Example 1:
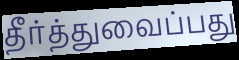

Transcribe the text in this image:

தீர்த்துவைப்பது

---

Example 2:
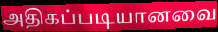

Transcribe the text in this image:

அதிகப்படியானவை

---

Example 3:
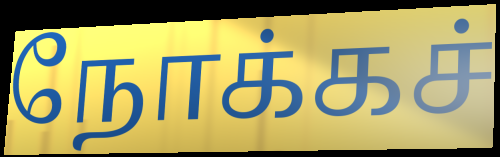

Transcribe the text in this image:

நோக்கச்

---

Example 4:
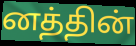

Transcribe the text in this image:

னத்தின்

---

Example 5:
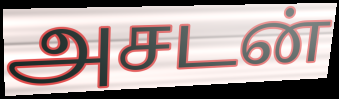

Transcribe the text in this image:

அசடன்